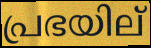
പ്രഭയില്